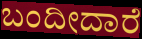
ಬಂದೀದಾರೆ